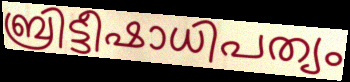
ബ്രിട്ടീഷാധിപത്യം